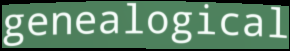
genealogical